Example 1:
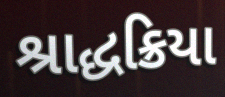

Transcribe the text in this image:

શ્રાદ્ધક્રિયા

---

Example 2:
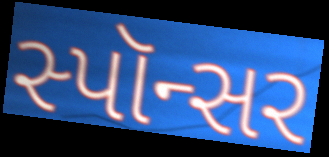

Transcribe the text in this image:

સ્પૉન્સર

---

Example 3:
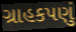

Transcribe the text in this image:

ગ્રાહકપણું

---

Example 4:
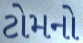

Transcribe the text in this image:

ટોમનો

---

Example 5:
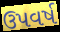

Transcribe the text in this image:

ઉપવર્ષ